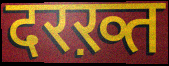
दरख़्त